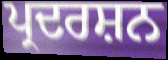
ਪ੍ਰਦਰਸ਼ਨ